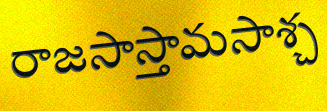
రాజసాస్తామసాశ్చ